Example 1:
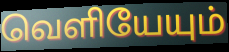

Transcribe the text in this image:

வெளியேயும்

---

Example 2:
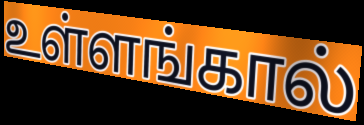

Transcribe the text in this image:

உள்ளங்கால்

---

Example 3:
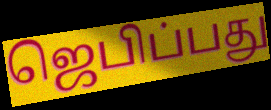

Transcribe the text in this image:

ஜெபிப்பது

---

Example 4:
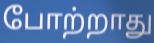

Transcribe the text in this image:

போற்றாது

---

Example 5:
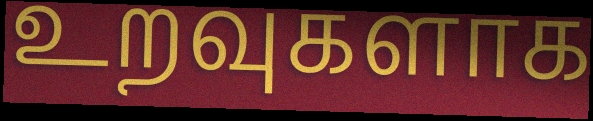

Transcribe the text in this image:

உறவுகளாக